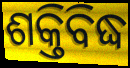
ଶକ୍ତିବିଦ୍ଧ